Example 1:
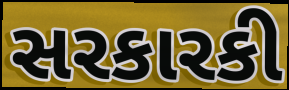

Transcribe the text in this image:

સરકારકી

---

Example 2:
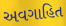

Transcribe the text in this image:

અવગાહિત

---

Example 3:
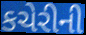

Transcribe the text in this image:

કચેરીની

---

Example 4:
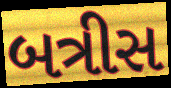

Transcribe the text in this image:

બત્રીસ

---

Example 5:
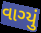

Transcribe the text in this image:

વાગ્યું